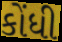
કોંધી